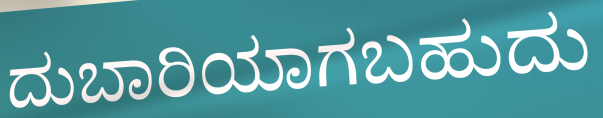
ದುಬಾರಿಯಾಗಬಹುದು